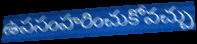
ఉపసంహరించుకోవచ్చు